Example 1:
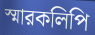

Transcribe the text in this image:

স্মারকলিপি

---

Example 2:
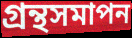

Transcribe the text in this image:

গ্রন্থসমাপন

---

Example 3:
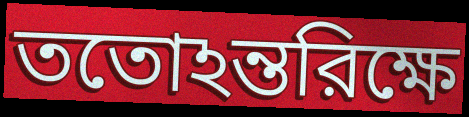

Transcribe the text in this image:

ততোঽন্তরিক্ষে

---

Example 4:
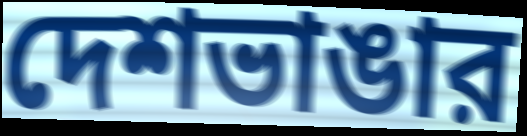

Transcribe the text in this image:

দেশভাঙার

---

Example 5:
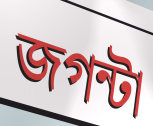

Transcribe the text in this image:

জগন্টা